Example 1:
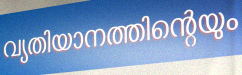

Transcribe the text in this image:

വ്യതിയാനത്തിന്റെയും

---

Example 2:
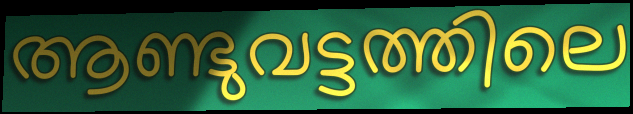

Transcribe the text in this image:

ആണ്ടുവട്ടത്തിലെ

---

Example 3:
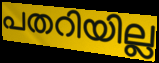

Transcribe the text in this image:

പതറിയില്ല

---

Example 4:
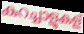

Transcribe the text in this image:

കുറച്ചാളുകള്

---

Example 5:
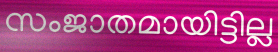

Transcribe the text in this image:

സംജാതമായിട്ടില്ല